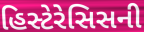
હિસ્ટેરેસિસની